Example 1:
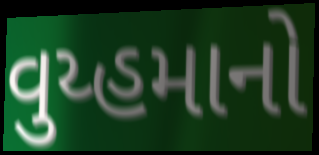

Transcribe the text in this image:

વુય્હમાનો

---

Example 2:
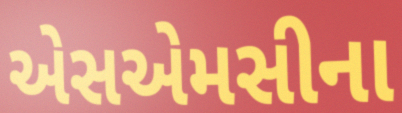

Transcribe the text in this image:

એસએમસીના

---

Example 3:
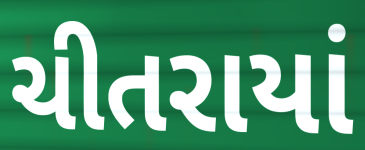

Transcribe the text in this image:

ચીતરાયાં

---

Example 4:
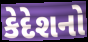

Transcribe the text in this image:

કેદેશનો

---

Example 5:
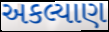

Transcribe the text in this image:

અકલ્યાણ